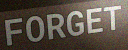
FORGET